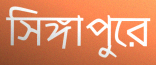
সিঙ্গাপুরে